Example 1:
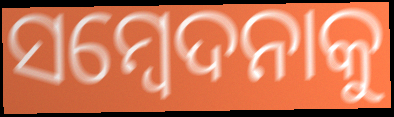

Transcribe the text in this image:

ସମ୍ବେଦନାକୁ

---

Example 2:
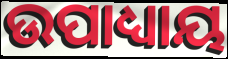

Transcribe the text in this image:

ଉପାଧ୍ୟାୟ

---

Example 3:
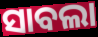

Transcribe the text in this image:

ସାବଲା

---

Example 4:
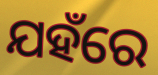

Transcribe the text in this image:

ଯହଁରେ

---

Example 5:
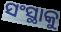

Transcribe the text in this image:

ସଂସ୍ଥାକୁ